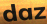
daz